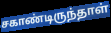
சகாண்டிருந்தாள்